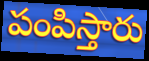
పంపిస్తారు